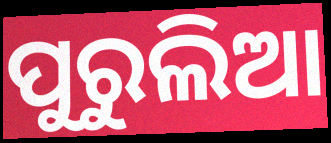
ପୁରୁଲିଆ